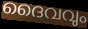
ദൈവവും